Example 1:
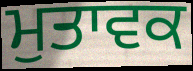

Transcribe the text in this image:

ਮੁਤਾਵਕ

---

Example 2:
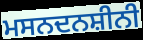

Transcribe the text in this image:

ਮਸਨਦਨਸ਼ੀਨੀ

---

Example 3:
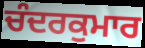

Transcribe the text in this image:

ਚੰਦਰਕੁਮਾਰ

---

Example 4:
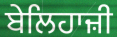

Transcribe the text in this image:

ਬੇਲਿਹਾਜ਼ੀ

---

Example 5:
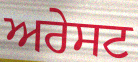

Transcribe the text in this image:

ਅਰੇਸਟ